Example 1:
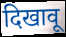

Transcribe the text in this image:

दिखावू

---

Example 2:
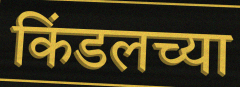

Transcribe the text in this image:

किंडलच्या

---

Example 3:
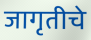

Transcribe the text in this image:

जागृतीचे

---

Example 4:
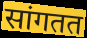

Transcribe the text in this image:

सांगतत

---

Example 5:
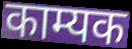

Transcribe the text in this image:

काम्यक